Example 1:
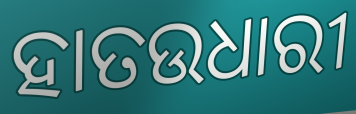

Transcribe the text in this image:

ହାତଉଧାରୀ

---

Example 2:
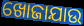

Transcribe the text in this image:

ଖୋଜାଯାଉ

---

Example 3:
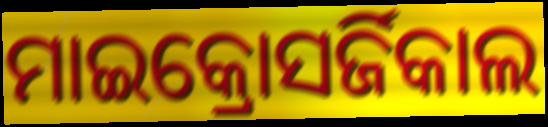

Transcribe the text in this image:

ମାଇକ୍ରୋସର୍ଜିକାଲ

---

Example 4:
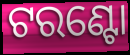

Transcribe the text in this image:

ଟରଣ୍ଟୋ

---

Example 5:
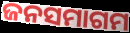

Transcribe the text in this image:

ଜନସମାଗମ